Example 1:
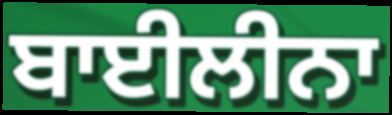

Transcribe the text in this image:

ਬਾਈਲੀਨਾ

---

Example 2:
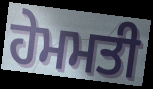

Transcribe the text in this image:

ਹੇਮਮਤੀ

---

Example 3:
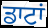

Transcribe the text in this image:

ਡਾਟਾਂ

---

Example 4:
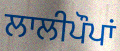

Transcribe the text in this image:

ਲਾਲੀਪੌਪਾਂ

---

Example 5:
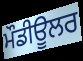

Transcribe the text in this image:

ਮੌਡੀਊਲਰ